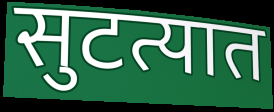
सुटत्यात